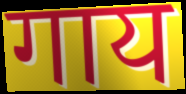
गाय